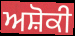
ਅਸ਼ੋਕੀ